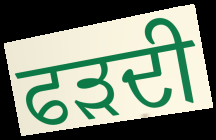
ਫੜਦੀ